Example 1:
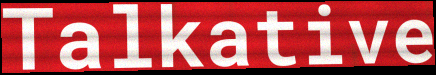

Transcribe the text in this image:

Talkative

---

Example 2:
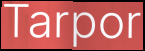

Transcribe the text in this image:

Tarpor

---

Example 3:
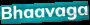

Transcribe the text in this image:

Bhaavaga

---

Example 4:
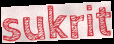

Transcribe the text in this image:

sukrit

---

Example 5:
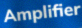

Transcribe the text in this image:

Amplifier